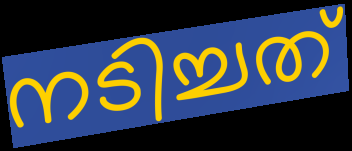
നടിച്ചത്